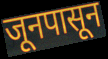
जूनपासून